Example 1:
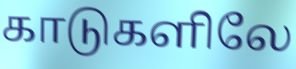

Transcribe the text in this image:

காடுகளிலே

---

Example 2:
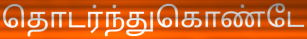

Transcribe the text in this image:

தொடர்ந்துகொண்டே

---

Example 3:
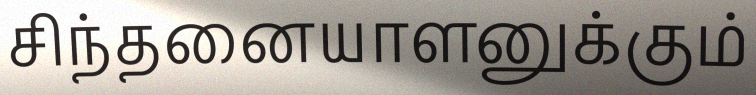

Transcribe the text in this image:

சிந்தனையாளனுக்கும்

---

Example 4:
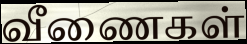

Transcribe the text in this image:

வீணைகள்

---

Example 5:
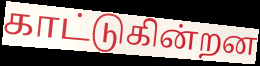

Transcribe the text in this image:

காட்டுகின்றன